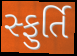
સ્ફુર્તિ